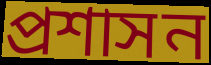
প্ৰশাসন